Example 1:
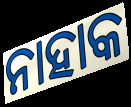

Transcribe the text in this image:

ନାହାକ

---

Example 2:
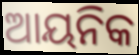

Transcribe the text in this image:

ଆୟନିକ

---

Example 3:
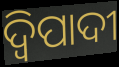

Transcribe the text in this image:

ଦ୍ୱିପାଦୀ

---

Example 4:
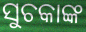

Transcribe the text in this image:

ସୁଚକାଙ୍କ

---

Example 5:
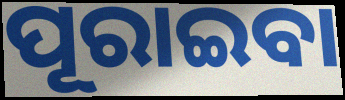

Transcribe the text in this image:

ପୂରାଇବା